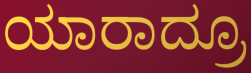
ಯಾರಾದ್ರೂ